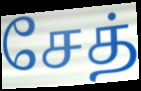
சேத்